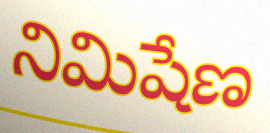
నిమిషేణ